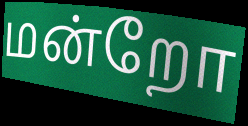
மன்றோ